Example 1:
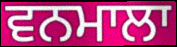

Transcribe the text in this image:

ਵਨਮਾਲਾ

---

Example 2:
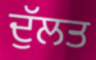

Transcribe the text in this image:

ਦੁੱਲਤ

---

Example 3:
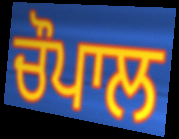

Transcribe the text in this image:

ਚੌਪਾਲ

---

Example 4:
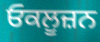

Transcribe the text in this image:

ਓਕਲੂਜ਼ਨ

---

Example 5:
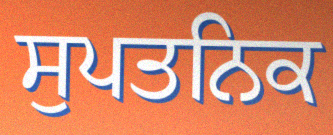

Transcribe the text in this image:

ਸੁਪਤਨਿਕ